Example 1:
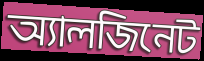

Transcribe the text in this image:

অ্যালজিনেট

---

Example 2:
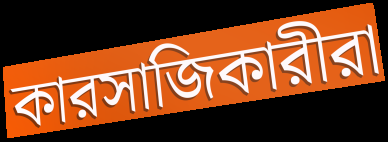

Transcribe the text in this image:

কারসাজিকারীরা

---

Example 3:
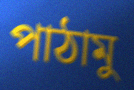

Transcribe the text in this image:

পাঠামু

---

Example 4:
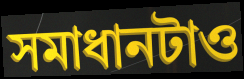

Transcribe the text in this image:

সমাধানটাও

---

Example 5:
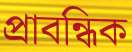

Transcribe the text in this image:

প্রাবন্ধিক